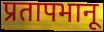
प्रतापभानू